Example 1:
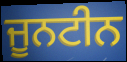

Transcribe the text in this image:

ਜੂਨਟੀਨ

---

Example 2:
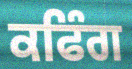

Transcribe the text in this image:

ਕਫਿੰਗ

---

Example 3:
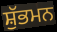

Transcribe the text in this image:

ਸ਼ੁੱਭਮਨ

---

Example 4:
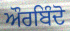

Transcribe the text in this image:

ਔਰਬਿੰਦੋ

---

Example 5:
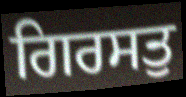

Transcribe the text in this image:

ਗਿਰਸਤੁ